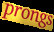
prongs